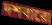
দশবারো